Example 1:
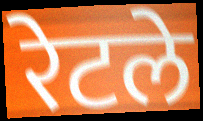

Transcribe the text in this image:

रेटले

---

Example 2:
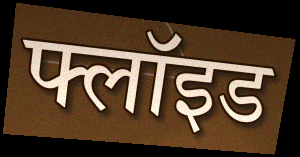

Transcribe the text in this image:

फ्लॉइड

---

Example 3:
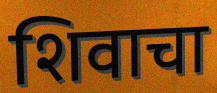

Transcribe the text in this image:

शिवाचा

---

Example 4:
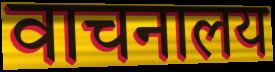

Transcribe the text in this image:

वाचनालय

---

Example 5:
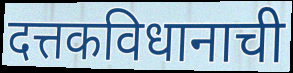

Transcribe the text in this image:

दत्तकविधानाची